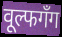
वूल्फगँग